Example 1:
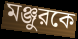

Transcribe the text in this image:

মঞ্জুরকে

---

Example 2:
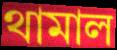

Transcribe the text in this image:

থামাল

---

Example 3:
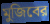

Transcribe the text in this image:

মুজিবের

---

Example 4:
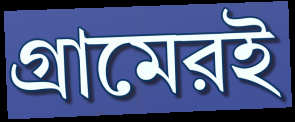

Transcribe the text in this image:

গ্রামেরই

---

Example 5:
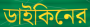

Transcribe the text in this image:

ডাইকিনের